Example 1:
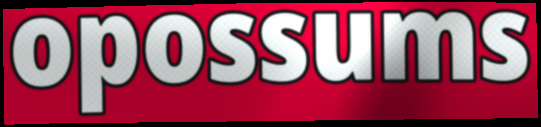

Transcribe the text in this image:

opossums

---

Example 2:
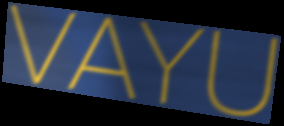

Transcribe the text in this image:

VAYU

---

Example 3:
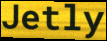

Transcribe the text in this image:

Jetly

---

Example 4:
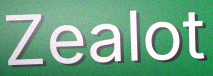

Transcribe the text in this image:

Zealot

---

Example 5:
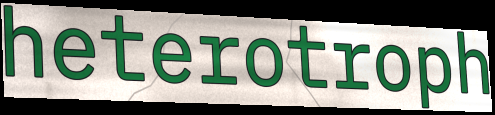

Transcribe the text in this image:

heterotroph